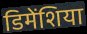
डिमेंशिया